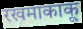
रखमाकाकू